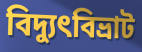
বিদ্যুৎবিভ্রাট